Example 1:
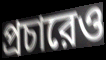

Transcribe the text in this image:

প্রচারেও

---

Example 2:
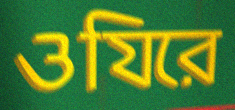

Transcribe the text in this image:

ওযিরে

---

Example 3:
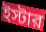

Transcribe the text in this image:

ইস্টার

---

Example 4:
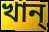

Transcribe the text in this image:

খান্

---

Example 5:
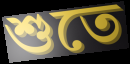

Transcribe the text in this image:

শুতে